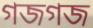
গজগজ